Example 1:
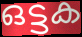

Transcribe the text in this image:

ഒട്ടക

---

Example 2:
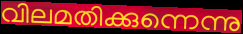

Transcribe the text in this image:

വിലമതിക്കുന്നെന്നു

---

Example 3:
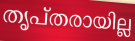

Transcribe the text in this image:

തൃപ്തരായില്ല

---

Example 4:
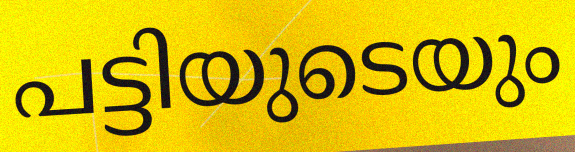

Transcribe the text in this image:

പട്ടിയുടെയും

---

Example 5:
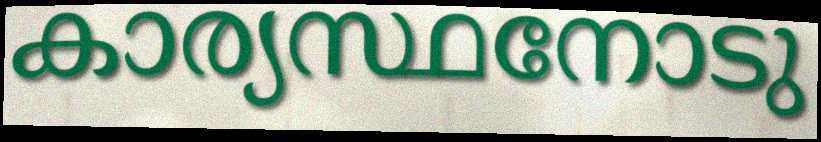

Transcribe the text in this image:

കാര്യസ്ഥനോടു